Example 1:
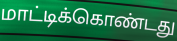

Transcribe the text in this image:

மாட்டிக்கொண்டது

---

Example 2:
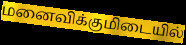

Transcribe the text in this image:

மனைவிக்குமிடையில்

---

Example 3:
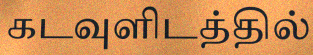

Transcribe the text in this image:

கடவுளிடத்தில்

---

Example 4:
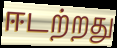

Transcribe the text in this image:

ஈடற்றது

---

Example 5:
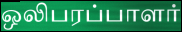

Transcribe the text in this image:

ஒலிபரப்பாளர்